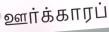
ஊர்க்காரப்